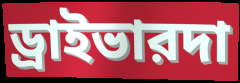
ড্রাইভারদা